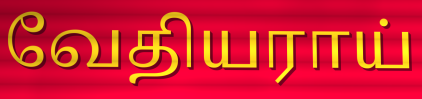
வேதியராய்